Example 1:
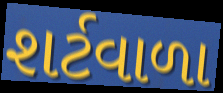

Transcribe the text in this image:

શર્ટવાળા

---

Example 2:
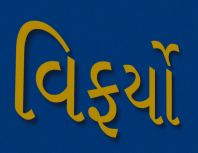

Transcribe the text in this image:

વિફર્યો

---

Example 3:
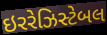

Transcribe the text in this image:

ઇરરેઝિસ્ટેબલ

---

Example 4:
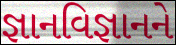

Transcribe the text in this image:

જ્ઞાનવિજ્ઞાનને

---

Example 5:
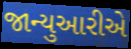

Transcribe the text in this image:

જાન્યુઆરીએ